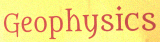
Geophysics